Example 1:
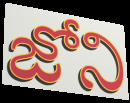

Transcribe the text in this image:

జోని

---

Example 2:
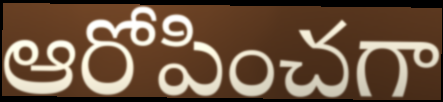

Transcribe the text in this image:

ఆరోపించగా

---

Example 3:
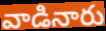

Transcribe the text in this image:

వాడినారు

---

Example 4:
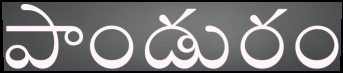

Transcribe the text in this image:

పాండురం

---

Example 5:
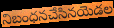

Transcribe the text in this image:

నిబంధనచేసినయెడల